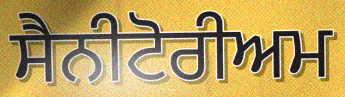
ਸੈਨੀਟੋਰੀਅਮ